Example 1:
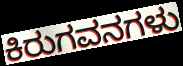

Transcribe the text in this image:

ಕಿರುಗವನಗಳು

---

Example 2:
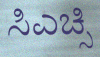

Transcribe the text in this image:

ಸಿಎಚ್ಸಿ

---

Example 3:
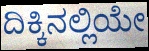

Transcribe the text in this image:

ದಿಕ್ಕಿನಲ್ಲಿಯೇ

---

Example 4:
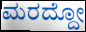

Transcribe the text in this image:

ಮರದ್ದೋ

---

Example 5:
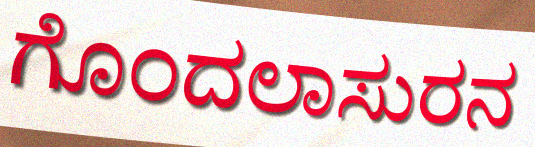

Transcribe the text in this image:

ಗೊಂದಲಾಸುರನ